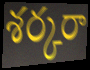
శర్కరా